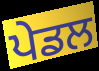
ਪੇਡਲ